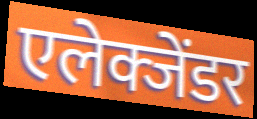
एलेक्‍जेंडर